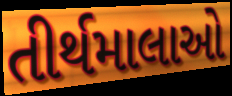
તીર્થમાલાઓ